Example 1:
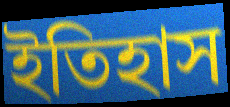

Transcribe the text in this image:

ইতিহাস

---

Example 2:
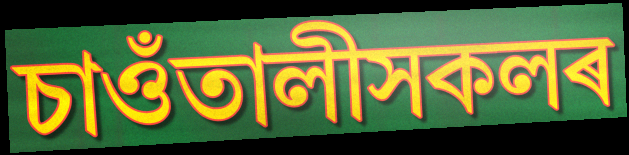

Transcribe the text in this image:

চাওঁতালীসকলৰ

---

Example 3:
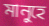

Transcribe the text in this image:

মানুহে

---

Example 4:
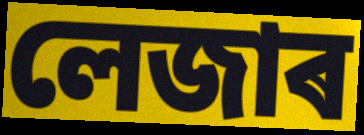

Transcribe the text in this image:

লেজাৰ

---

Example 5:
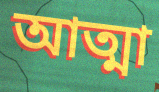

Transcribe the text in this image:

আত্মা